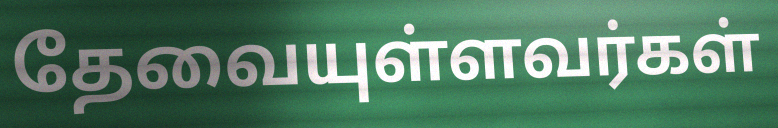
தேவையுள்ளவர்கள்